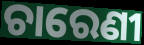
ଚାରେଣୀ